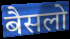
बैसलो